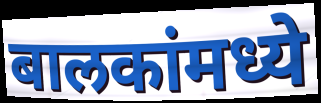
बालकांमध्ये